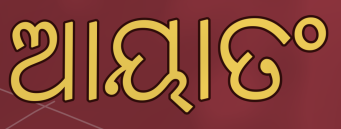
ଆୟାତଂ